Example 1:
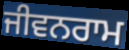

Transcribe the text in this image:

ਜੀਵਨਰਾਮ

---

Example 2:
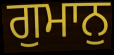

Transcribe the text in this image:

ਗੁਮਾਨੁ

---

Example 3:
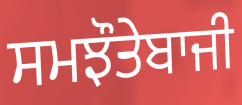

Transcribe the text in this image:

ਸਮਝੌਤੇਬਾਜੀ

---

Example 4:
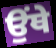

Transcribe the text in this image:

ਉੰਥੇ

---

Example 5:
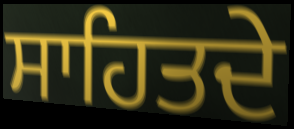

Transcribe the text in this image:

ਸਾਹਿਤਦੇ